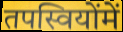
तपस्वियोंमें